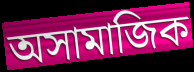
অসামাজিক